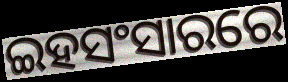
ଇହସଂସାରରେ